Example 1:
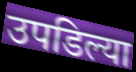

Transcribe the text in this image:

उपडिल्या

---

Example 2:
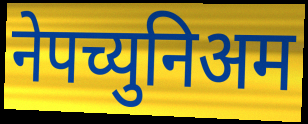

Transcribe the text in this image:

नेपच्युनिअम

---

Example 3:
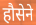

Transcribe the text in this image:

हौसेने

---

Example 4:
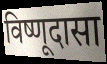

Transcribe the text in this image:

विष्णूदासा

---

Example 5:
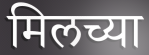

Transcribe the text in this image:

मिलच्या